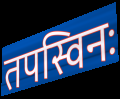
तपस्विनः